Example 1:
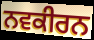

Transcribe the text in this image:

ਨਵਕੀਰਨ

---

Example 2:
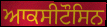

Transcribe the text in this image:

ਆਕਸੀਟੌਸਿਨ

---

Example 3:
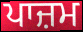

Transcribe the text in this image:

ਪਾਜ਼ਮ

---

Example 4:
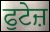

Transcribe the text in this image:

ਫੁਟੇਜ਼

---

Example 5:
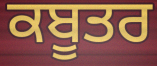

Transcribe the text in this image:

ਕਬੂਤਰ